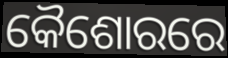
କୈଶୋରରେ